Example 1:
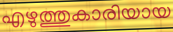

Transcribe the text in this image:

എഴുത്തുകാരിയായ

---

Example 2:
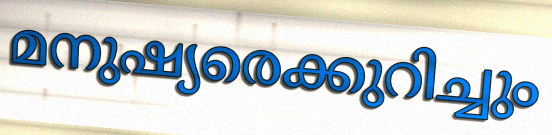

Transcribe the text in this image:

മനുഷ്യരെക്കുറിച്ചും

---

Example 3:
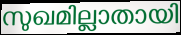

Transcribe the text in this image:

സുഖമില്ലാതായി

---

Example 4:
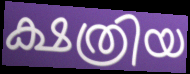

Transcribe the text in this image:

ക്ഷത്രിയ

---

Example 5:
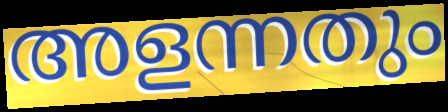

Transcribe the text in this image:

അളന്നതും